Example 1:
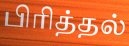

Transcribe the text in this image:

பிரித்தல்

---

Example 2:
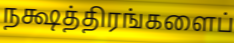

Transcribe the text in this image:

நக்ஷத்திரங்களைப்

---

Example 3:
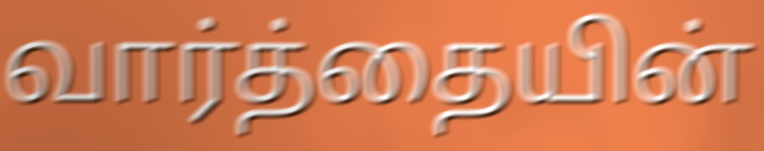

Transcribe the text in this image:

வார்த்தையின்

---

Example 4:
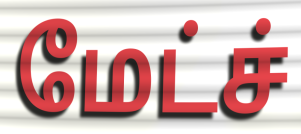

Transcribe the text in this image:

மேட்ச்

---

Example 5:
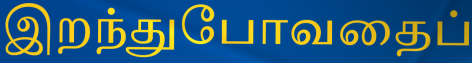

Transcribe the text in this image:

இறந்துபோவதைப்